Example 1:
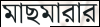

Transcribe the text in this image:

মাছমারার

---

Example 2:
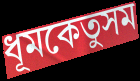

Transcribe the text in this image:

ধূমকেতুসম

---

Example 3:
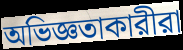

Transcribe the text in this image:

অভিজ্ঞতাকারীরা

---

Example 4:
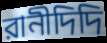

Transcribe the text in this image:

রানীদিদি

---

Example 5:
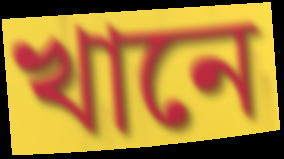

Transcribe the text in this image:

খানে